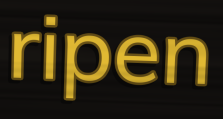
ripen